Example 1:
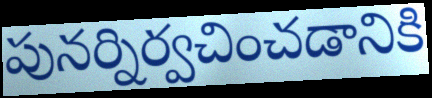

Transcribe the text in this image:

పునర్నిర్వచించడానికి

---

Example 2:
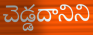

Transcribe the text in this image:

చెడ్డదానిని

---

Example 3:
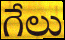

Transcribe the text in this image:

గేలు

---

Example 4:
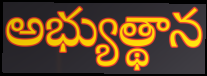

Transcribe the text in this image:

అభ్యుత్థాన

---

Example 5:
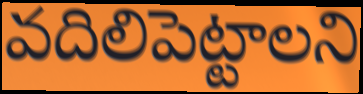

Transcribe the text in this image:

వదిలిపెట్టాలని